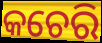
କଚେରି